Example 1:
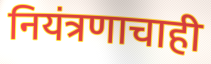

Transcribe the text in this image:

नियंत्रणाचाही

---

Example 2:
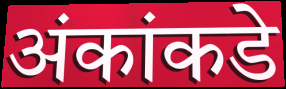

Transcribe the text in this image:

अंकांकडे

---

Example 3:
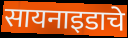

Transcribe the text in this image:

सायनाइडाचे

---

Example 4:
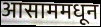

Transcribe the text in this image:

आसाममधून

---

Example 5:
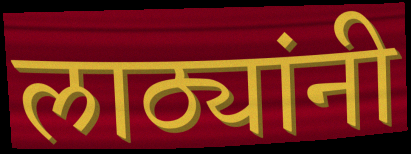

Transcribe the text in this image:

लाठ्यांनी